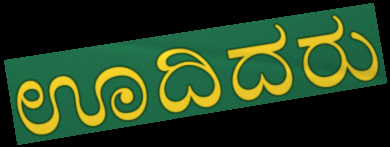
ಊದಿದರು